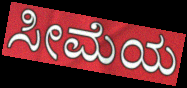
ಸೀಮೆಯ